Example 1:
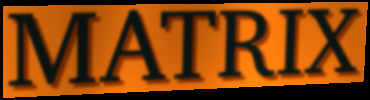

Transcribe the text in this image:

MATRIX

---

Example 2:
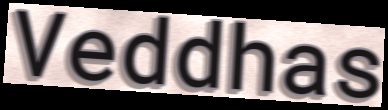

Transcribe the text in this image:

Veddhas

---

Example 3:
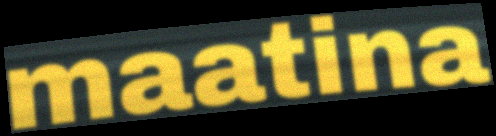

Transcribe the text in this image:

maatina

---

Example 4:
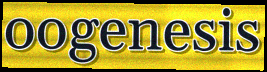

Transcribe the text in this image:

oogenesis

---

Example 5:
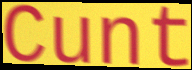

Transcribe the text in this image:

Cunt